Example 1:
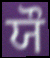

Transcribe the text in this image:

ਯੌ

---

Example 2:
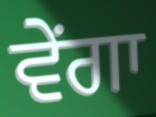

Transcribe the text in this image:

ਵੇਂਗਾ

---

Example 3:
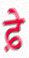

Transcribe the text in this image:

ਫ਼ੇ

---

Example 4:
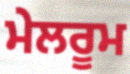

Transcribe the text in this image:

ਮੇਲਰੂਮ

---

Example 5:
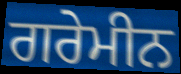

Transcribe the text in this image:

ਗਰੇਮੀਨ